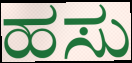
ಹಸು